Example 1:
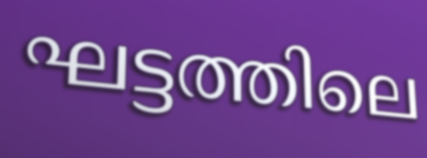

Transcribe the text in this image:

ഘട്ടത്തിലെ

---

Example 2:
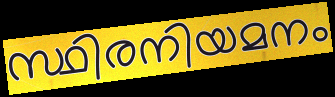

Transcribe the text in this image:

സ്ഥിരനിയമനം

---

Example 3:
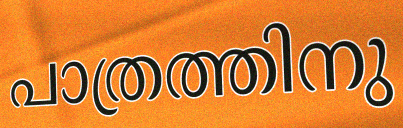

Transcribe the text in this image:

പാത്രത്തിനു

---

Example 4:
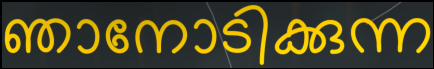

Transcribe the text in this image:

ഞാനോടിക്കുന്ന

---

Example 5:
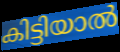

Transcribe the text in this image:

കിട്ടിയാൽ